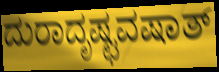
ದುರಾದೃಷ್ಟವಷಾತ್